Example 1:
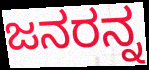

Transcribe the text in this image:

ಜನರನ್ನ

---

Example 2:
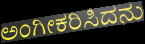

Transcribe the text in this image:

ಅಂಗೀಕರಿಸಿದನು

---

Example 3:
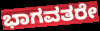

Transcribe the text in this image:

ಭಾಗವತರೇ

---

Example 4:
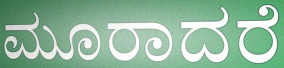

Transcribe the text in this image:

ಮೂರಾದರೆ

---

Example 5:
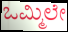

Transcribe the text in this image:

ಒಮ್ಮಿಲೇ